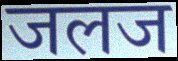
जलज